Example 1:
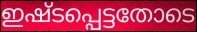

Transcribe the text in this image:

ഇഷ്ടപ്പെട്ടതോടെ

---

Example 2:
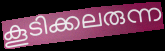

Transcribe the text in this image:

കൂടിക്കലരുന്ന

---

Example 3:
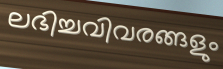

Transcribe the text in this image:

ലഭിച്ചവിവരങ്ങളും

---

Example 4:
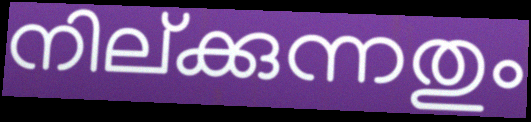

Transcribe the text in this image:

നില്ക്കുന്നതും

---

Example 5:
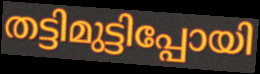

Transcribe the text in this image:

തട്ടിമുട്ടിപ്പോയി